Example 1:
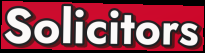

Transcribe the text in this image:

Solicitors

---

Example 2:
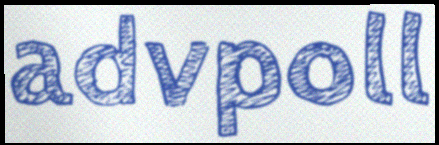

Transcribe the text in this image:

advpoll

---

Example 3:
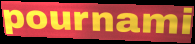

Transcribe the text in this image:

pournami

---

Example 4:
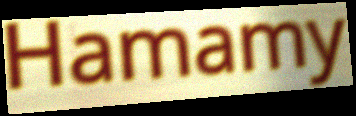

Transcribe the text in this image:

Hamamy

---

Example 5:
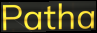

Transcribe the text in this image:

Patha